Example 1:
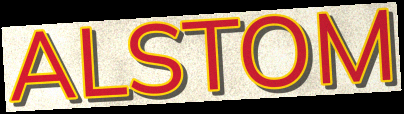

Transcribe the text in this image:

ALSTOM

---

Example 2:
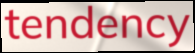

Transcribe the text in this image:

tendency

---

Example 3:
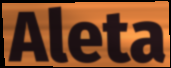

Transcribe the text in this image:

Aleta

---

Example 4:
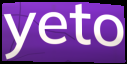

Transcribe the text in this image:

yeto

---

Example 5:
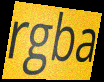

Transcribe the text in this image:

rgba